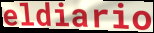
eldiario